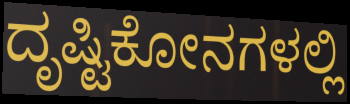
ದೃಷ್ಟಿಕೋನಗಳಲ್ಲಿ